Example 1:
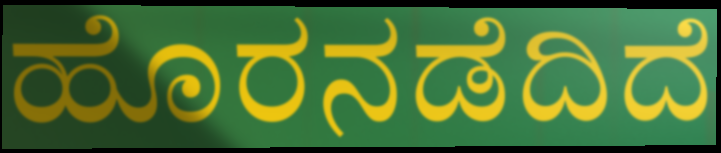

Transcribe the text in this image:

ಹೊರನಡೆದಿದೆ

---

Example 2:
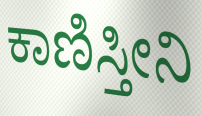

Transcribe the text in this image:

ಕಾಣಿಸ್ತೀನಿ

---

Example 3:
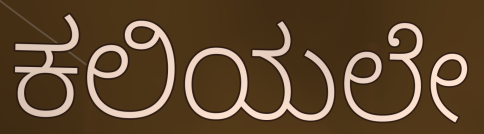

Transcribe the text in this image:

ಕಲಿಯಲೇ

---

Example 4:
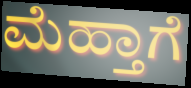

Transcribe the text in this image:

ಮೆಹ್ತಾಗೆ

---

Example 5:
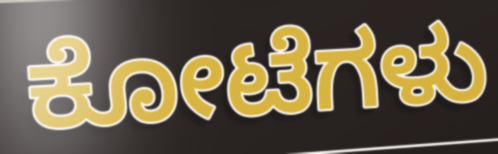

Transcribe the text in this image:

ಕೋಟೆಗಳು